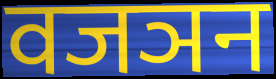
वजञन